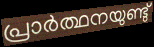
പ്രാർത്ഥനയുണ്ടു്